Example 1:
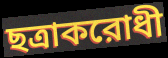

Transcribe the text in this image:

ছত্রাকরোধী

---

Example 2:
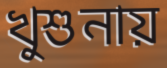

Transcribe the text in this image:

খুশুনায়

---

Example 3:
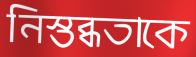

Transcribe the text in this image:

নিস্তব্ধতাকে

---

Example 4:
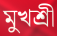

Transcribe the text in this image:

মুখশ্রী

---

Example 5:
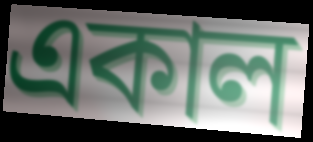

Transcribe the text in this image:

একাল